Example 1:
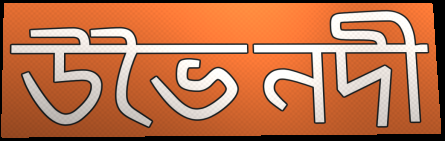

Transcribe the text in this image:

উভৈনদী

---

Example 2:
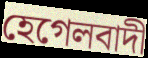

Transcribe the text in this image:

হেগেলবাদী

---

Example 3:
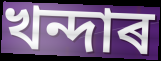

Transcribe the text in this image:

খন্দাৰ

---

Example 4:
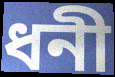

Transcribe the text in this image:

ধনী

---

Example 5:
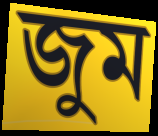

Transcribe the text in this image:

জুম